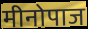
मीनोपाज